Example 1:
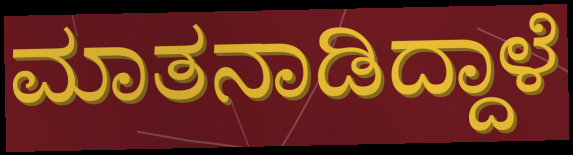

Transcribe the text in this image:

ಮಾತನಾಡಿದ್ದಾಳೆ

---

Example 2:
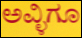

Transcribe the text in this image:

ಅವ್ಳಿಗೂ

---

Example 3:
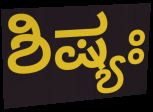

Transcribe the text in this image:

ಶಿಷ್ಯಃ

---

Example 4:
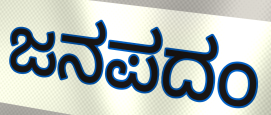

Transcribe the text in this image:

ಜನಪದಂ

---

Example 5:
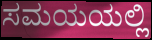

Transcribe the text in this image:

ಸಮಯಯಲ್ಲಿ